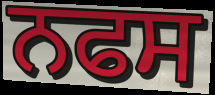
ਨਫਸ